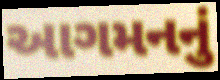
આગમનનું